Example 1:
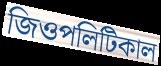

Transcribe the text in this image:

জিওপলিটিকাল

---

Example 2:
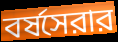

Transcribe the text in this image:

বর্ষসেরার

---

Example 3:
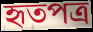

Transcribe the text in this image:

হৃতপত্র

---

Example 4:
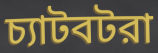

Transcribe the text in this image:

চ্যাটবটরা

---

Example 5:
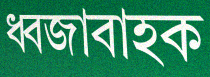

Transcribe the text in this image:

ধ্বজাবাহক